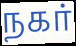
நகர்